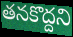
తనకొద్దని